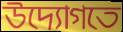
উদ্যোগতে